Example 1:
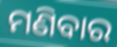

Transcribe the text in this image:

ମଣିବାର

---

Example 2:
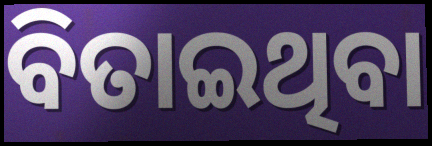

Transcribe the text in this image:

ବିତାଇଥିବା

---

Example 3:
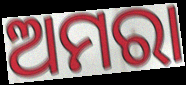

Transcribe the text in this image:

ଅମରା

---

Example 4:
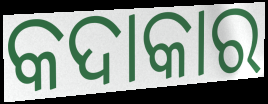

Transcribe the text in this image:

କଦାକାର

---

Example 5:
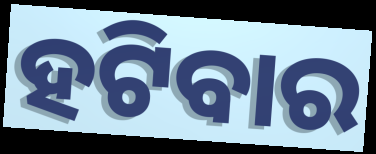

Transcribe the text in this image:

ହଟିବାର